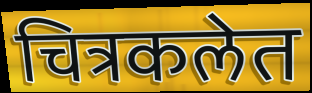
चित्रकलेत